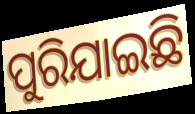
ପୁରିଯାଇଛି